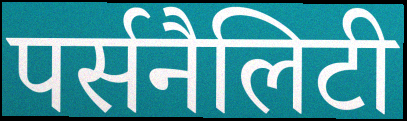
पर्सनैलिटी